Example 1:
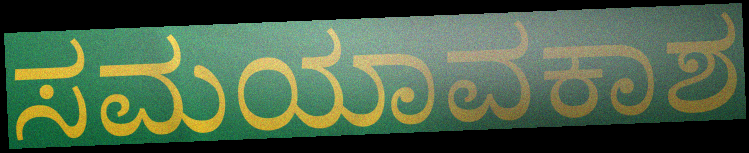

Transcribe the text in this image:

ಸಮಯಾವಕಾಶ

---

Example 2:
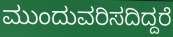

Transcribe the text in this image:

ಮುಂದುವರಿಸದಿದ್ದರೆ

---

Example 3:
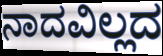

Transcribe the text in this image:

ನಾದವಿಲ್ಲದ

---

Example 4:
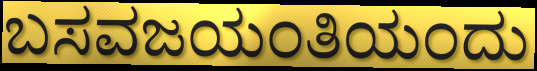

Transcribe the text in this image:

ಬಸವಜಯಂತಿಯಂದು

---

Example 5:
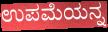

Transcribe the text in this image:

ಉಪಮೆಯನ್ನ